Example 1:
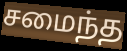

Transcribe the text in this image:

சமைந்த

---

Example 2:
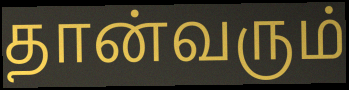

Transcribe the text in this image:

தான்வரும்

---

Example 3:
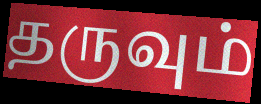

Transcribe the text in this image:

தருவும்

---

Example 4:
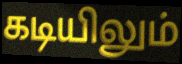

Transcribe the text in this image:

கடியிலும்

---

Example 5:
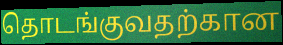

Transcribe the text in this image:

தொடங்குவதற்கான